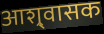
आश्र्वासक